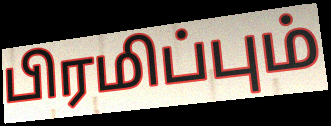
பிரமிப்பும்